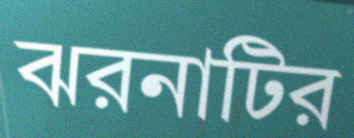
ঝরনাটির